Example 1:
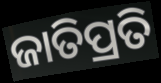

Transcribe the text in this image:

ଜାତିପ୍ରତି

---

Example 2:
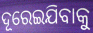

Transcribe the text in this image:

ଦୂରେଇଯିବାକୁ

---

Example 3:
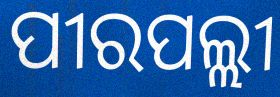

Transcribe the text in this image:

ପୀରପଲ୍ଲୀ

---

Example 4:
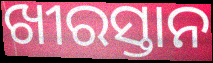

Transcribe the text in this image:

ଖୀରସ୍ତାନ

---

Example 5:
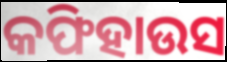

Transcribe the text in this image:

କଫିହାଉସ